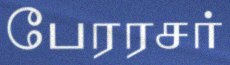
பேரரசர்